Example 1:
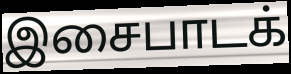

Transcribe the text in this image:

இசைபாடக்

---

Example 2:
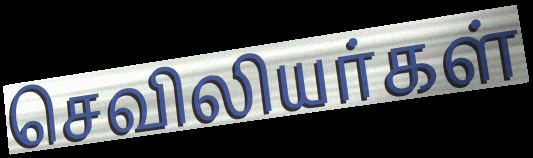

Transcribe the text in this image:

செவிலியர்கள்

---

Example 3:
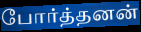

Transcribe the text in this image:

போர்த்தனன்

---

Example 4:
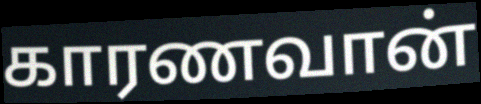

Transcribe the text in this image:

காரணவான்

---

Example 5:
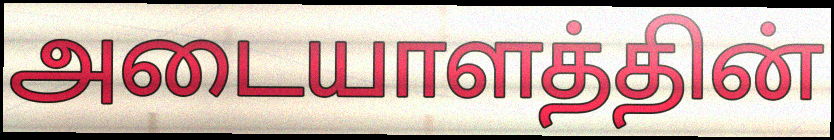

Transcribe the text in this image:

அடையாளத்தின்